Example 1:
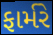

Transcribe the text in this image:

ફાર્મરે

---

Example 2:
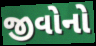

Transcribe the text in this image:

જીવોનો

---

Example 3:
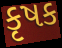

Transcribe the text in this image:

કૃષક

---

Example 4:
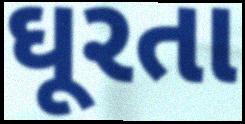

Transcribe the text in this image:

ઘૂરતા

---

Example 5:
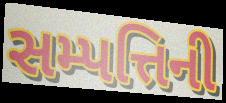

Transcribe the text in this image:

સમ્પત્તિની